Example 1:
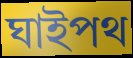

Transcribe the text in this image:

ঘাইপথ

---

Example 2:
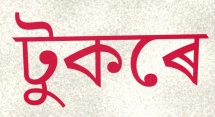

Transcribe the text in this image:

টুকৰে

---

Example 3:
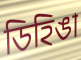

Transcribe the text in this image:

ডিহিঙা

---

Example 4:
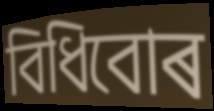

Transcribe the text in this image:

বিধিবোৰ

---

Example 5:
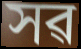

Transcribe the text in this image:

সৱ